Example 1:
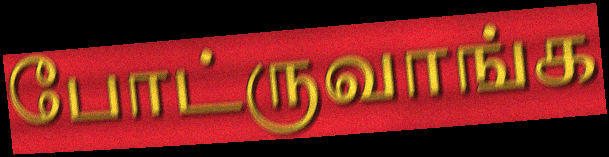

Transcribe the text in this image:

போட்ருவாங்க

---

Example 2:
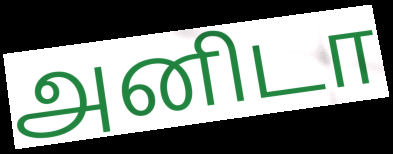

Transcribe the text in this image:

அனிடா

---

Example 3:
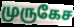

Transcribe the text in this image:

முருகேச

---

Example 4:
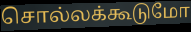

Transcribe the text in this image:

சொல்லக்கூடுமோ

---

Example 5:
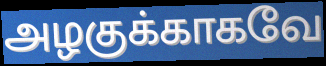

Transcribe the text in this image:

அழகுக்காகவே